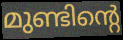
മുണ്ടിന്റെ